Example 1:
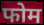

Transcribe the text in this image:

फोम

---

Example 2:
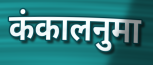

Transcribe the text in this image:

कंकालनुमा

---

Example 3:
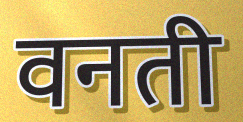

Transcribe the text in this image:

वनती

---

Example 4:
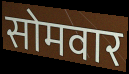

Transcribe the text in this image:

सोमवार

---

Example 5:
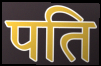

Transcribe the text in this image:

पति